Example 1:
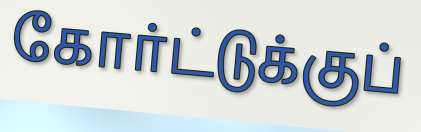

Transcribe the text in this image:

கோர்ட்டுக்குப்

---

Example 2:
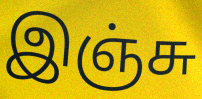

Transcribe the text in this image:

இஞ்சு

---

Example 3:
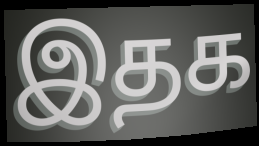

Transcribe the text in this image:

இதக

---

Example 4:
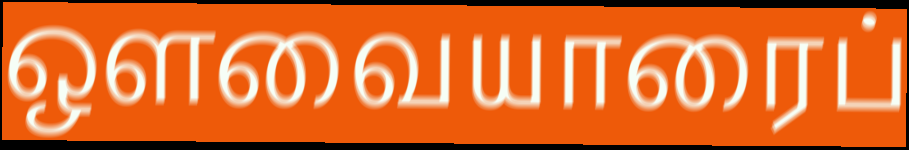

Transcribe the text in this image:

ஔவையாரைப்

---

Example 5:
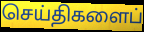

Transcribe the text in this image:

செய்திகளைப்